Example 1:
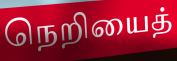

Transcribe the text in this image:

நெறியைத்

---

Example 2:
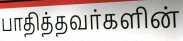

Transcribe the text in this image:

பாதித்தவர்களின்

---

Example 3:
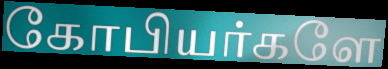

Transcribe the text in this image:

கோபியர்களே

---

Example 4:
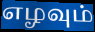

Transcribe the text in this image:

எழவும்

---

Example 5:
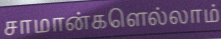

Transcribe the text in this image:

சாமான்களெல்லாம்